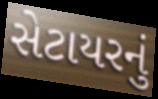
સેટાયરનું